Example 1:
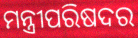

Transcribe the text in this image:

ମନ୍ତ୍ରୀପରିଷଦର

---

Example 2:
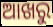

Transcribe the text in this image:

ଆଖରୁ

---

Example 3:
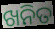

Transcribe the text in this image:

ଖନିତ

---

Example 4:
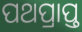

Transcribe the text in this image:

ପଥପ୍ରାପ୍ତ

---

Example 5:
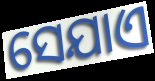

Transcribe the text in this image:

ସେଯାଏ